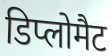
डिप्लोमैट